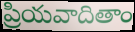
ప్రియవాదితాం